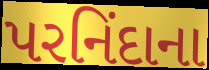
પરનિંદાના